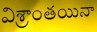
విశ్రాంతయినా